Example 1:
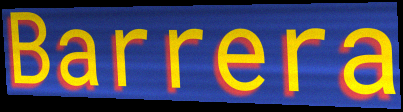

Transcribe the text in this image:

Barrera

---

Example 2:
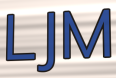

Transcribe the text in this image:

LJM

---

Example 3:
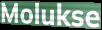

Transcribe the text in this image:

Molukse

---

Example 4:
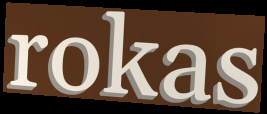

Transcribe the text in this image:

rokas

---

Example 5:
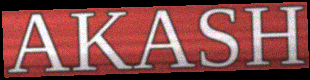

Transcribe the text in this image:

AKASH